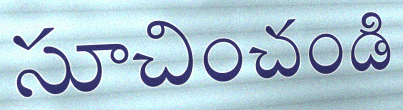
సూచించండి